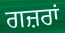
ਗਜ਼ਰਾਂ